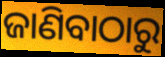
ଜାଣିବାଠାରୁ